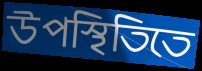
উপস্থিতিতে